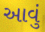
આવું